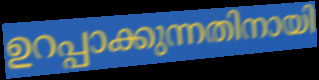
ഉറപ്പാക്കുന്നതിനായി